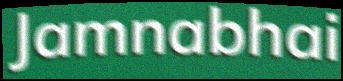
Jamnabhai